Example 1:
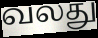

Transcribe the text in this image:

வலது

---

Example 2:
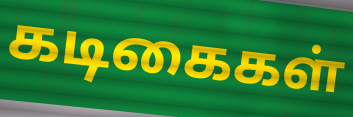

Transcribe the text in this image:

கடிகைகள்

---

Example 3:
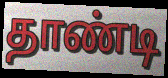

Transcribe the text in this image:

தாண்டி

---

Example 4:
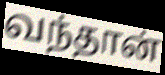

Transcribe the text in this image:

வந்தான்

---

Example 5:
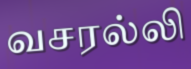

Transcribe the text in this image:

வசரல்லி